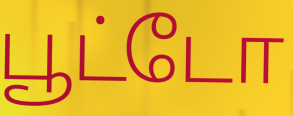
பூட்டோ